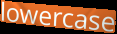
lowercase